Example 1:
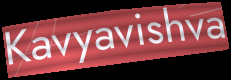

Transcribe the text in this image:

Kavyavishva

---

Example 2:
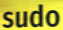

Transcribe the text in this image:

sudo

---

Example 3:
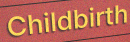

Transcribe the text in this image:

Childbirth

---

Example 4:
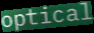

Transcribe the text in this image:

optical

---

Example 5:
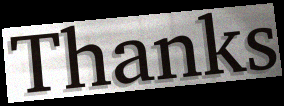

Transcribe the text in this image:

Thanks